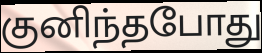
குனிந்தபோது